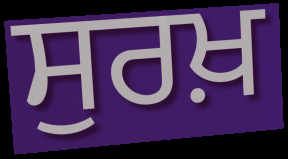
ਸੁਰਖ਼